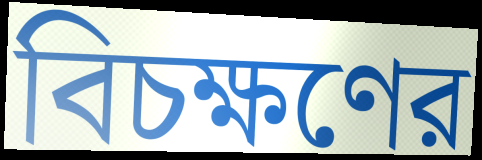
বিচক্ষণের